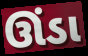
ઊંડા